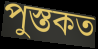
পুস্তকত